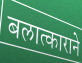
बलात्काराने